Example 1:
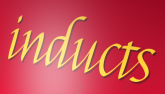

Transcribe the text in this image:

inducts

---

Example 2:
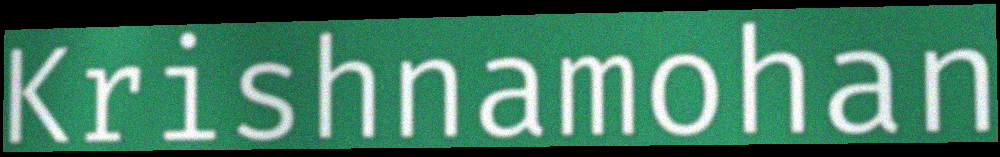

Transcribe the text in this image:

Krishnamohan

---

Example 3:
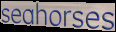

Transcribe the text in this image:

seahorses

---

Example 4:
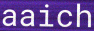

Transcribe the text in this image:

aaich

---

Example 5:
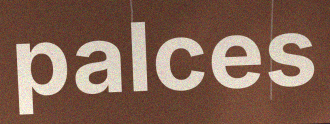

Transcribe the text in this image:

palces